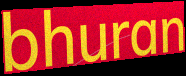
bhuran